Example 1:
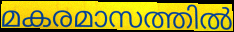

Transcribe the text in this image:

മകരമാസത്തിൽ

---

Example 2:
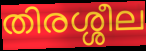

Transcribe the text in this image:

തിരശ്ശീല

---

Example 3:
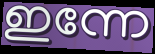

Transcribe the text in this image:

ഇന്നേ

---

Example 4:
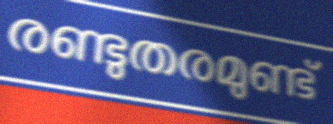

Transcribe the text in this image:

രണ്ടുതരമുണ്ട്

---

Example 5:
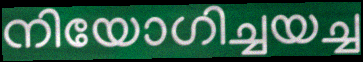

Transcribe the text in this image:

നിയോഗിച്ചയച്ച